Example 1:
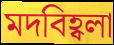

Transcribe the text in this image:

মদবিহ্বলা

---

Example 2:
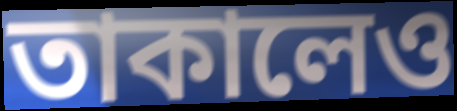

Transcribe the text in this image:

তাকালেও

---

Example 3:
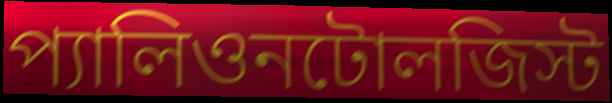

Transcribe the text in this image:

প্যালিওনটোলজিস্ট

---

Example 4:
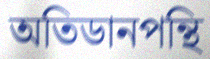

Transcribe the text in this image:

অতিডানপন্থি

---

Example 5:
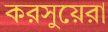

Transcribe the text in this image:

করসুয়েরা